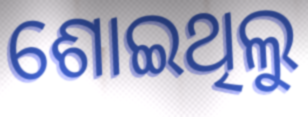
ଶୋଇଥିଲୁ